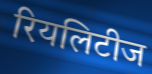
रियलिटीज